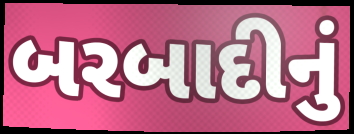
બરબાદીનું